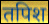
तपिश